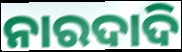
ନାରଦାଦି